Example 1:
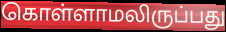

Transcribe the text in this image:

கொள்ளாமலிருப்பது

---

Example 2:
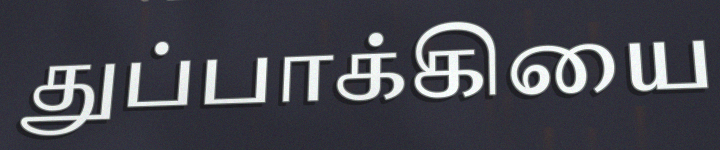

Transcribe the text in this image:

துப்பாக்கியை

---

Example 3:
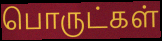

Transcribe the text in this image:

பொருட்கள்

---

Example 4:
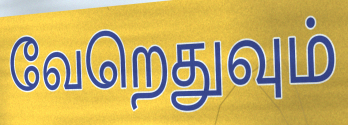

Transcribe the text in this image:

வேறெதுவும்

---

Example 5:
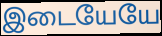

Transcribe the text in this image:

இடையேயே